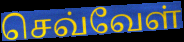
செவ்வேள்